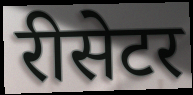
रीसेटर